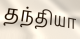
தந்தியா